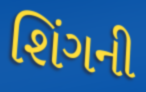
શિંગની